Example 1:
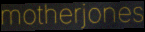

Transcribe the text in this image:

motherjones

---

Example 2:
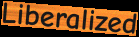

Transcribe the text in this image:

Liberalized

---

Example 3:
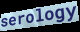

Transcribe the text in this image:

serology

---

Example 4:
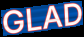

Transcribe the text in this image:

GLAD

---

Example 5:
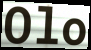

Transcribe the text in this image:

Olo